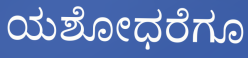
ಯಶೋಧರೆಗೂ